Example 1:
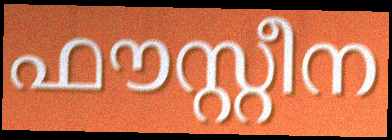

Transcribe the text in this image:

ഫൗസ്റ്റീന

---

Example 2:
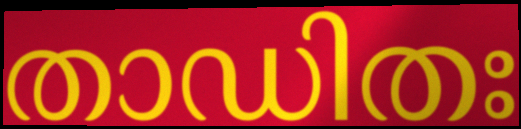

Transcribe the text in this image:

താഡിതഃ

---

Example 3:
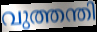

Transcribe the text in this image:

വുത്തന്തി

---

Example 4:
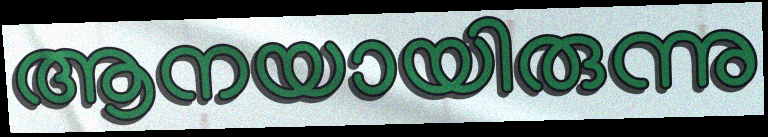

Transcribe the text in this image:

ആനയായിരുന്നു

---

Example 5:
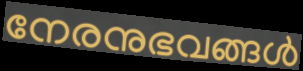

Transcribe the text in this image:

നേരനുഭവങ്ങൾ